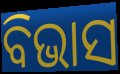
ବିଭାସ